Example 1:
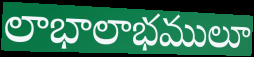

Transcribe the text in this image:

లాభాలాభములూ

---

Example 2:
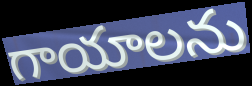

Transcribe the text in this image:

గాయాలను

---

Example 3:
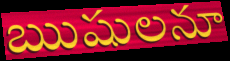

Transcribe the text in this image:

ఋషులనూ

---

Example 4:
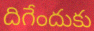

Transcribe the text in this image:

దిగేందుకు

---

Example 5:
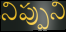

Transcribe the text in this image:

నిప్పుని